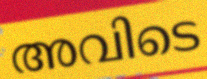
അവിടെ